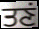
ਤਣਂ